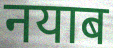
नयाब